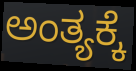
ಅಂತ್ಯಕ್ಕೆ